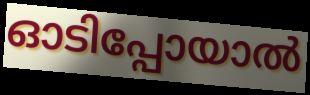
ഓടിപ്പോയാൽ